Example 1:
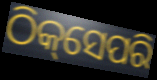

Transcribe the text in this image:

ଠିକ୍‌ସେପରି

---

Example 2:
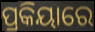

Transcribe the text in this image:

ପ୍ରକିୟାରେ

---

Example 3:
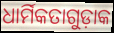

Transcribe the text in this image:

ଧାର୍ମିକତାଗୁଡ଼ାକ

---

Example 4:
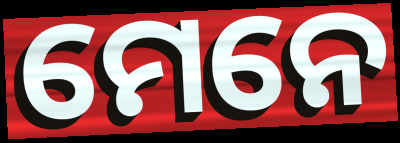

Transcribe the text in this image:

ମେନେ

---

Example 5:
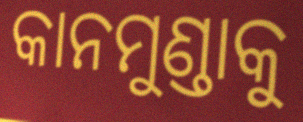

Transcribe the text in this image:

କାନମୁଣ୍ଡାକୁ